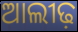
ଆଲୀଢ଼